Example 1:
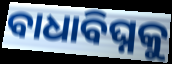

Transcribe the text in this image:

ବାଧାବିଘ୍ନକୁ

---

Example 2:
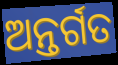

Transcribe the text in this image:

ଅନ୍ତର୍ଗତ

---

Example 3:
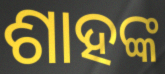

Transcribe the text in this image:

ଶାହଙ୍କ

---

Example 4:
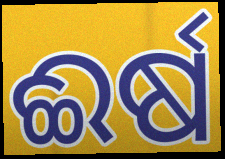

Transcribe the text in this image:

ଈର୍ଷ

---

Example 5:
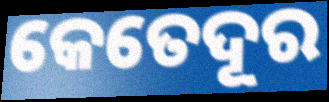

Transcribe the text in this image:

କେତେଦୂର